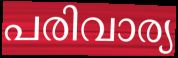
പരിവാര്യ